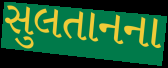
સુલતાનના